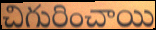
చిగురించాయి